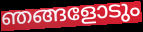
ഞങ്ങളോടും